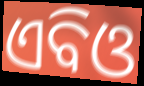
ଏବିଓ